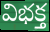
విభక్త